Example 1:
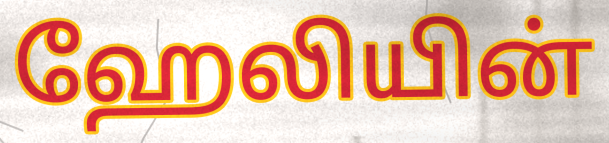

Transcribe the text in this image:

ஹேலியின்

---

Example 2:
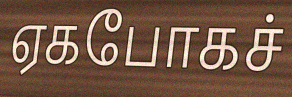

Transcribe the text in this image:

ஏகபோகச்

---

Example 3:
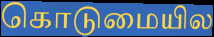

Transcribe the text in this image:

கொடுமையில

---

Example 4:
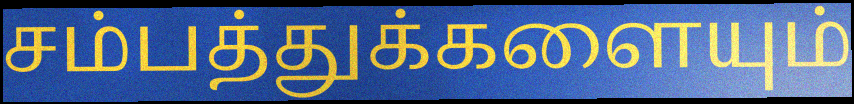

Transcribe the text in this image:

சம்பத்துக்களையும்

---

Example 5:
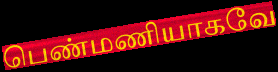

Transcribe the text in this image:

பெண்மணியாகவே